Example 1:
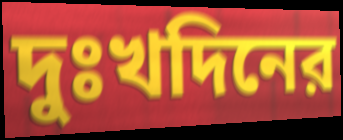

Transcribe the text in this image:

দুঃখদিনের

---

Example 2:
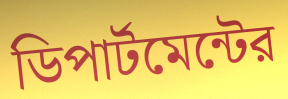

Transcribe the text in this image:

ডিপার্টমেন্টের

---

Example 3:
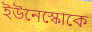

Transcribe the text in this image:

ইউনেস্কোকে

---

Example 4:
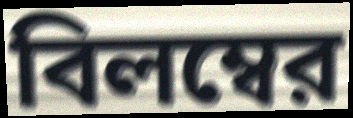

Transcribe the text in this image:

বিলম্বের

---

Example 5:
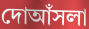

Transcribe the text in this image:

দোআঁসলা